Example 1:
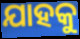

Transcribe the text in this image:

ଯାହକୁ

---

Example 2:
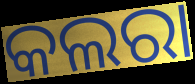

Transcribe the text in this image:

କଲରା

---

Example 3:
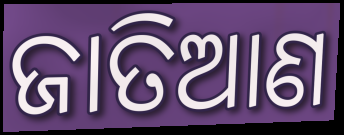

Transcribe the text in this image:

ଜାତିଆଣ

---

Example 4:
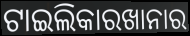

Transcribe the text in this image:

ଟାଇଲିକାରଖାନାର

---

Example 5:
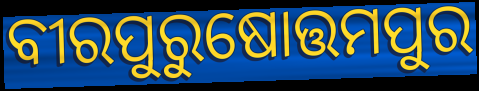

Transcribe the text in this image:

ବୀରପୁରୁଷୋତ୍ତମପୁର